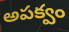
అపక్వం